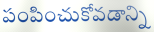
పంపించుకోవడాన్ని